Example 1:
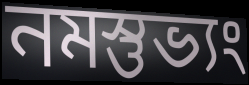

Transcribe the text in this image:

নমস্তুভ্যং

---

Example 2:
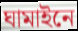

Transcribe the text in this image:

ঘামাইনে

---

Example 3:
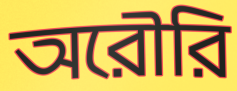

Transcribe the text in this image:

অরৌরি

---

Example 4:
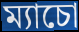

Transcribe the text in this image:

ম্যাচো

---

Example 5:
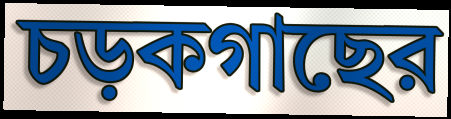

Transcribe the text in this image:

চড়কগাছের